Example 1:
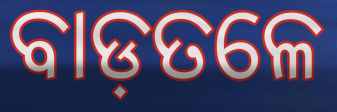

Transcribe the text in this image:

ବାଡ଼ତଳେ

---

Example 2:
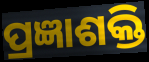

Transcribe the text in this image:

ପ୍ରଜ୍ଞାଶକ୍ତି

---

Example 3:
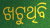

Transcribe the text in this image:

ଖଟୁଥିବି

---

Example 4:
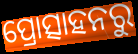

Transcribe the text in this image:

ପ୍ରୋତ୍ସାହନରୁ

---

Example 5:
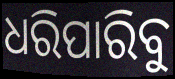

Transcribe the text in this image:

ଧରିପାରିବୁ